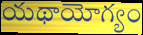
యథాయోగ్యం